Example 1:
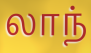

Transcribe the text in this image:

லாந்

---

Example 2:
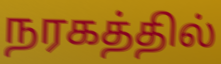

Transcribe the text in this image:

நரகத்தில்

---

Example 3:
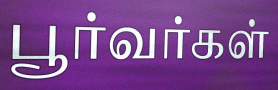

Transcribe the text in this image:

பூர்வர்கள்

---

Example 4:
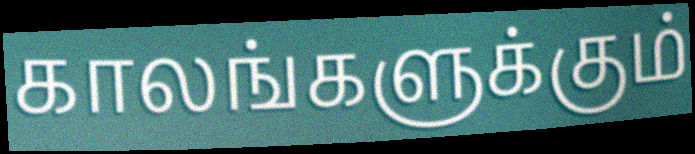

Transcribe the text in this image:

காலங்களுக்கும்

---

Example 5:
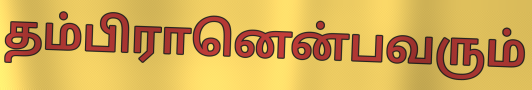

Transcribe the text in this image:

தம்பிரானென்பவரும்